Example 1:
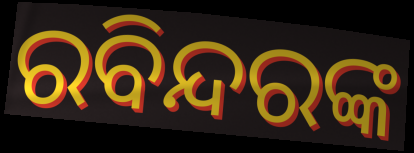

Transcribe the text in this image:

ରବିନ୍ଦରଙ୍କ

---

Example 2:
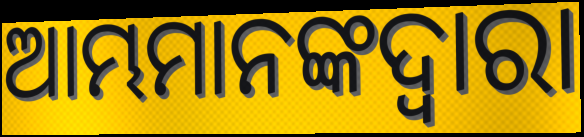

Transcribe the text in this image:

ଆମ୍ଭମାନଙ୍କଦ୍ୱାରା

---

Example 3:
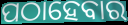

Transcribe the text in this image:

ପଠାହେବାର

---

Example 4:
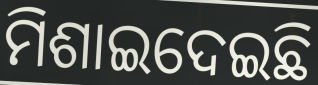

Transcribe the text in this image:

ମିଶାଇଦେଇଛି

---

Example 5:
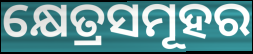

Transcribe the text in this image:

କ୍ଷେତ୍ରସମୂହର